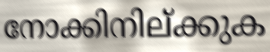
നോക്കിനില്ക്കുക